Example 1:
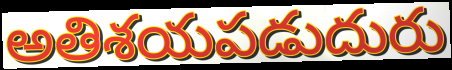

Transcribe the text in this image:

అతిశయపడుదురు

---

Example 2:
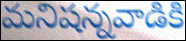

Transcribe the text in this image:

మనిషన్నవాడికి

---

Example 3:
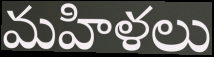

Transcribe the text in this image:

మహిళలు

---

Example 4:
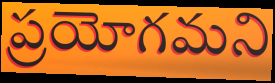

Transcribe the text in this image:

ప్రయోగమని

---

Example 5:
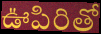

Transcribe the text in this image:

ఊపిరితో